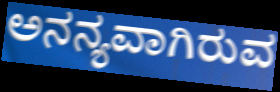
ಅನನ್ಯವಾಗಿರುವ